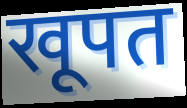
खूपत